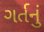
ગર્તનું